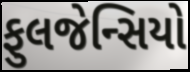
ફુલજેન્સિયો